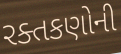
રક્તકણોની